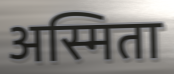
अस्मिता